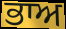
ਭਾਅ